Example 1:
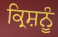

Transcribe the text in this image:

ਕ੍ਰਿਸ਼ਨੂੰ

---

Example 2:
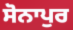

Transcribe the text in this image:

ਸੋਨਾਪੁਰ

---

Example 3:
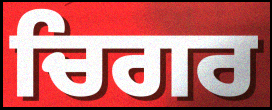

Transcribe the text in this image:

ਚਿਗਰ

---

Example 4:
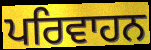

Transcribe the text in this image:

ਪਰਿਵਾਹਨ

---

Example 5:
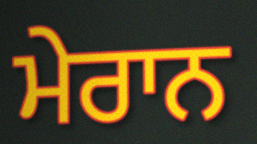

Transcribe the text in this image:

ਮੇਰਾਨ